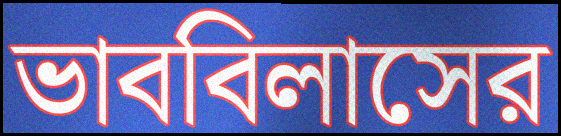
ভাববিলাসের